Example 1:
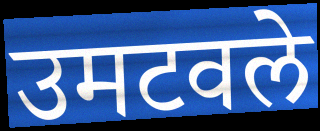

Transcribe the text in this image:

उमटवले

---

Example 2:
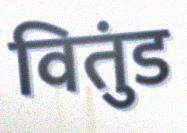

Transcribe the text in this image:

वितुंड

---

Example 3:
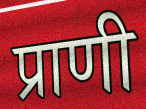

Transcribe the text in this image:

प्राणी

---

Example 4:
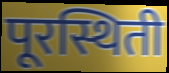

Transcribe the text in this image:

पूरस्थिती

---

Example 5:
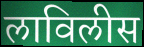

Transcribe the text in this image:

लाविलीस